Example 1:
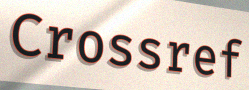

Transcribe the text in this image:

Crossref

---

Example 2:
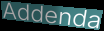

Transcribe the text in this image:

Addenda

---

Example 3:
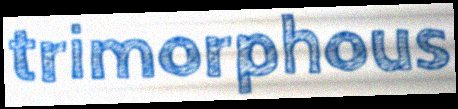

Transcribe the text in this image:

trimorphous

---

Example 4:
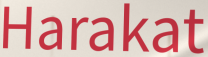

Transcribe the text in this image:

Harakat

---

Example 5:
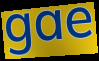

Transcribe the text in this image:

gae